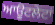
ਆਊਟਲੇਟਾਂ